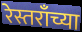
रेस्तराँच्या